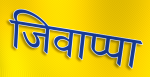
जिवाप्पा